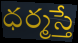
ధర్మస్తే